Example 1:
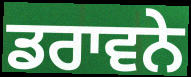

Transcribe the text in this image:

ਡਰਾਵਨੇ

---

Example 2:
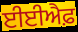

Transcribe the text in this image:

ਈਈਐਫ਼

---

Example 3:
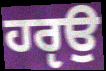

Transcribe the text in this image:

ਹਰੵਉ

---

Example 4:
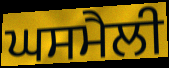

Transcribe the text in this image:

ਘਸਮੈਲੀ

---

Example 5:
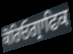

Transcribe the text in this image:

ਕੋਰਿਓਗ੍ਰਾਫਿਕ